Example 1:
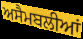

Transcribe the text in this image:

ਅਸੈਮਬਲੀਆਂ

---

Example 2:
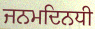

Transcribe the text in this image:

ਜਨਮਦਿਨਧੀ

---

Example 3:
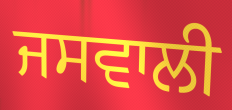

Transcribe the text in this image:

ਜਸਵਾਲੀ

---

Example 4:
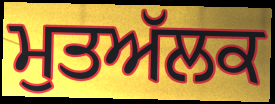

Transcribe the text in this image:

ਮੁਤਅੱਲਕ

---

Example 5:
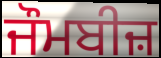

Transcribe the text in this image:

ਜੌਮਬੀਜ਼